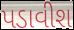
પડાવીશ